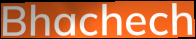
Bhachech